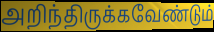
அறிந்திருக்கவேண்டும்